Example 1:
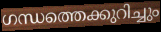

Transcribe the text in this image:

ഗന്ധത്തെക്കുറിച്ചും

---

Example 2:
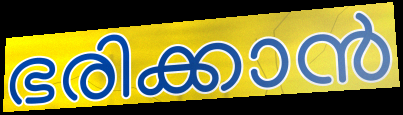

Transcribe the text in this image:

ഭരിക്കാൻ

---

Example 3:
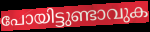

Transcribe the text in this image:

പോയിട്ടുണ്ടാവുക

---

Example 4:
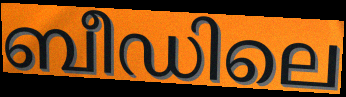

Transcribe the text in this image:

ബീഡിലെ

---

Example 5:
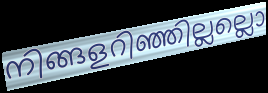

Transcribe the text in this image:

നിങ്ങളറിഞ്ഞില്ലല്ലൊ